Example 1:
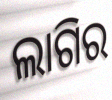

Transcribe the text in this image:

ଲାଗିର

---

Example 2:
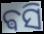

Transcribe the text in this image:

ଵସି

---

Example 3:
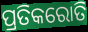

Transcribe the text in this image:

ପ୍ରତିକରୋତି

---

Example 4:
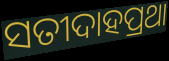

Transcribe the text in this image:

ସତୀଦାହପ୍ରଥା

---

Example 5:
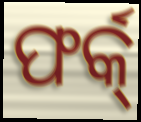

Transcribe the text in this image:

ଫର୍କ୍